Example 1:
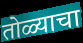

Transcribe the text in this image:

तोळ्याचा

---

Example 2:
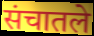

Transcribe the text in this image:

संचातले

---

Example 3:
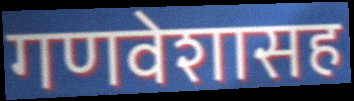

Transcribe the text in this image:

गणवेशासह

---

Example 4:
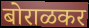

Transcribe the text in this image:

बोराळकर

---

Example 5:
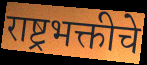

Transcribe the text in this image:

राष्ट्रभक्तीचे